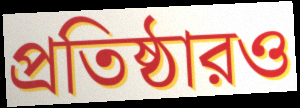
প্রতিষ্ঠারও